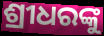
ଶ୍ରୀଧରଙ୍କୁ